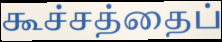
கூச்சத்தைப்